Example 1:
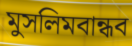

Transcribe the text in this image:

মুসলিমবান্ধব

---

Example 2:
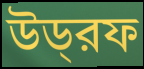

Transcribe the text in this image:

উড্‌রফ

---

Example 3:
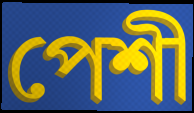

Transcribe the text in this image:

পেশী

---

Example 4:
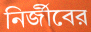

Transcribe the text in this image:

নির্জীবের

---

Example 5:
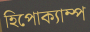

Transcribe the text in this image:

হিপোক্যাম্প